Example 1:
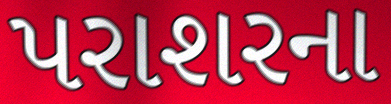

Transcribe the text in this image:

પરાશરના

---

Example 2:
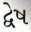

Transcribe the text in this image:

દ્વેષ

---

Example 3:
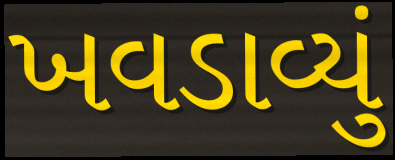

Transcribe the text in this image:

ખવડાવ્યું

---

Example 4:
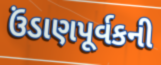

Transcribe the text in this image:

ઉંડાણપૂર્વકની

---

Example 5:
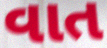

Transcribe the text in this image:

વાત